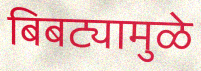
बिबट्यामुळे